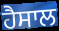
ਹੈਸਾਲ